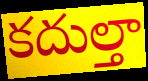
కదుల్తా